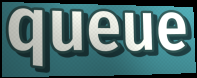
queue